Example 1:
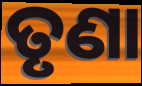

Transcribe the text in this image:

ତୃଣା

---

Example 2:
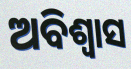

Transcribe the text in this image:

ଅବିଶ୍ବାସ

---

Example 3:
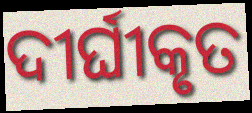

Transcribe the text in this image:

ଦୀର୍ଘୀକୃତ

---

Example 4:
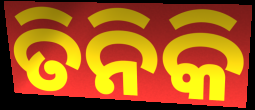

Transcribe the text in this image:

ତିନିକି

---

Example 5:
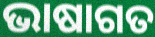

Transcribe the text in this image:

ଭାଷାଗତ